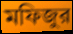
মফিজুর